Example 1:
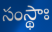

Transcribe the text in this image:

సంస్థాః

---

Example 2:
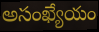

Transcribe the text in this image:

అసంఖ్యేయం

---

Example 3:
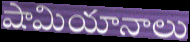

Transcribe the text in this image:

షామియానాలు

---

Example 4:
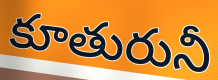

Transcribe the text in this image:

కూతురునీ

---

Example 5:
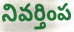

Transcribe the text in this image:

నివర్తింప